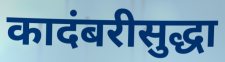
कादंबरीसुद्धा